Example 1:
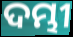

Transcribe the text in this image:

ଦମ୍ଭୀ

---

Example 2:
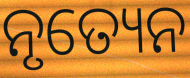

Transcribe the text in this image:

ନୃତ୍ୟେନ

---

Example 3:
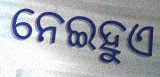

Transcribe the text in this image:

ନେଇହୁଏ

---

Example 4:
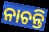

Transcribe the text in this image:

ନାଚନ୍ତି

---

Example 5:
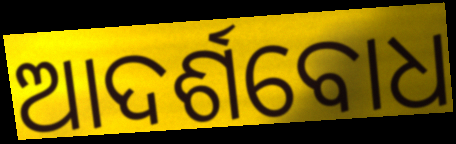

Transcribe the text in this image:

ଆଦର୍ଶବୋଧ